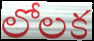
లోలక